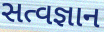
સત્વજ્ઞાન